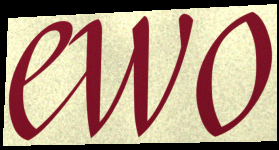
ewo